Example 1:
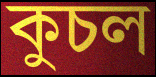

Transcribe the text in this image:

কুচল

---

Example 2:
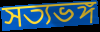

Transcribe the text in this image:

সত্যভঙ্গ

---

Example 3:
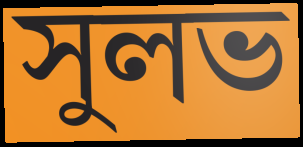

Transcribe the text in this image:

সুলভ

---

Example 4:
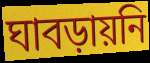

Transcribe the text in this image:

ঘাবড়ায়নি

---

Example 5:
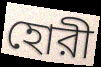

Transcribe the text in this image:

হোরী